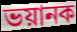
ভয়ানক